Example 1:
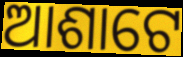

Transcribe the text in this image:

ଆଶାଟେ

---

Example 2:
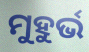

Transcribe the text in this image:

ମୁହୁର୍ଭ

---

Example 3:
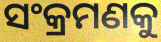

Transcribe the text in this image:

ସଂକ୍ରମଣକୁ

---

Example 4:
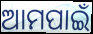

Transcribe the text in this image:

ଆମପାଇଁ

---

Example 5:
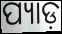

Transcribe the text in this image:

ପ୍ୟାଡ଼